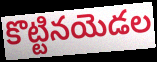
కొట్టినయెడల